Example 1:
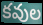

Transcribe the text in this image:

కవుల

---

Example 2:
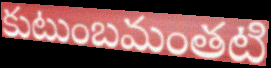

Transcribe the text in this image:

కుటుంబమంతటి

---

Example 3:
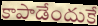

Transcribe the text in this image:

కాపాడేందుకే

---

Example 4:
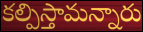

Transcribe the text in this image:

కల్పిస్తామన్నారు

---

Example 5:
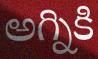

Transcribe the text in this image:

అగ్నికి